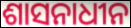
ଶାସନାଧୀନ